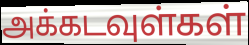
அக்கடவுள்கள்